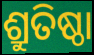
ଶ୍ରୁତିଷ୍ଠା